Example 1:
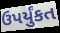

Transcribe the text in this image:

ઉપર્યુંકત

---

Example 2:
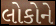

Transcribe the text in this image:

લોકોને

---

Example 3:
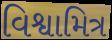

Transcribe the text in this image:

વિશ્વામિત્ર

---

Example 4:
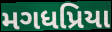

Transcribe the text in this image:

મગધપ્રિયા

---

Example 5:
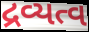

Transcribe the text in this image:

દ્રવ્યત્વ